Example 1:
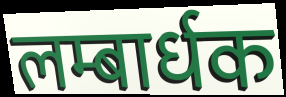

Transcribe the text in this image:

लम्बार्धक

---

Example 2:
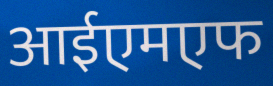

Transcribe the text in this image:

आईएमएफ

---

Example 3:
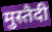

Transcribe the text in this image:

मुस्तैदी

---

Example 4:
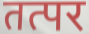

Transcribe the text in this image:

तत्पर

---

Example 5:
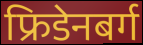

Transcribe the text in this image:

फ्रिडेनबर्ग